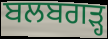
ਬਲਬਗੜ੍ਹ